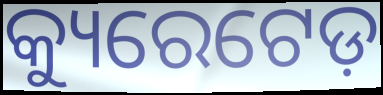
କ୍ୟୁରେଟେଡ଼